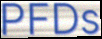
PFDs